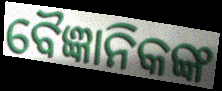
ବୈଜ୍ଞାନିକଙ୍କ